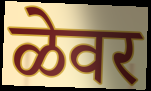
ळेवर